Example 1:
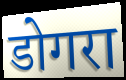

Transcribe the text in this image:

डोगरा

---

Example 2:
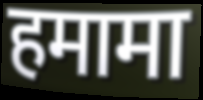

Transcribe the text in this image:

हमामा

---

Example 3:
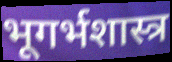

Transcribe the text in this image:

भूगर्भशास्त्र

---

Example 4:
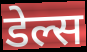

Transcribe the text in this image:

डेल्स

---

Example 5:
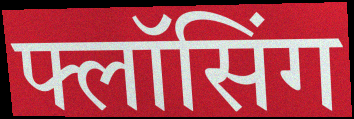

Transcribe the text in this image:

फ्लॉसिंग